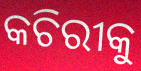
କଚିରୀକୁ